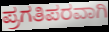
ಪ್ರಗತಿಪರವಾಗಿ